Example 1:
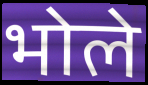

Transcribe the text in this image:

भोले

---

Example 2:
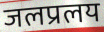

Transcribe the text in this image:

जलप्रलय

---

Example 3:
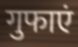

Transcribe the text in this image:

गुफाएं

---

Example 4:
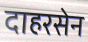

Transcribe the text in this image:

दाहरसेन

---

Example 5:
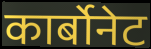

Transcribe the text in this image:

कार्बोनेट